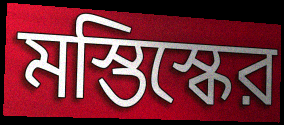
মস্তিস্কের